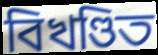
বিখণ্ডিত